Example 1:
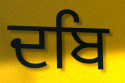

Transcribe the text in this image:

ਦਬਿ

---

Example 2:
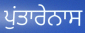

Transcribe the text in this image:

ਪੁਂਤਾਰੇਨਾਸ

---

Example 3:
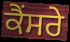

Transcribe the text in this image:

ਕੈਂਸਰੇ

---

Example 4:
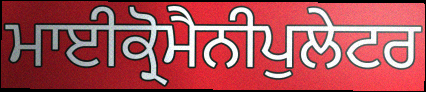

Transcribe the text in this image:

ਮਾਈਕ੍ਰੋਮੈਨੀਪੁਲੇਟਰ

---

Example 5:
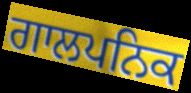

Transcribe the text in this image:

ਗਾਲਪਨਿਕ